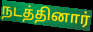
நடத்தினார்